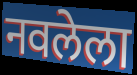
नवलेला